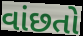
વાંછતો